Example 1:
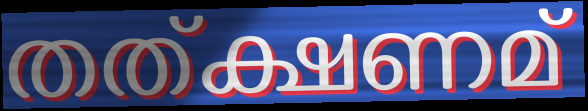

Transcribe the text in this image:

തത്ക്ഷണമ്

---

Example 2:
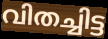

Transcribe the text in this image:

വിതച്ചിട്ട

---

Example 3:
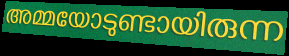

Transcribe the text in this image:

അമ്മയോടുണ്ടായിരുന്ന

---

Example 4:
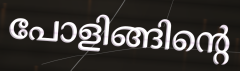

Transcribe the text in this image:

പോളിങ്ങിന്റെ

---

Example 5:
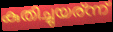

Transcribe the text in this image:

കുതിച്ചുയര്ന്ന്